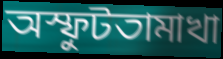
অস্ফুটতামাখা